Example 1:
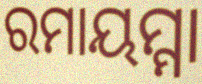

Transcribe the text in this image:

ରମାୟମ୍ମା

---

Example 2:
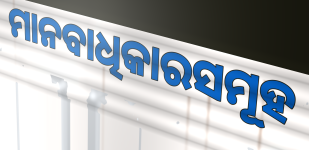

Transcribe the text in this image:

ମାନବାଧିକାରସମୂହ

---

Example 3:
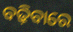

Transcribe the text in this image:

ବଢ଼ିବାରେ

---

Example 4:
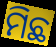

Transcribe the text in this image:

ମିଛ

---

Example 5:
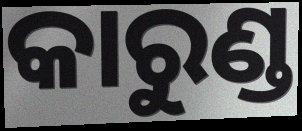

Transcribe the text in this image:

କାରୁଣ୍ଡ